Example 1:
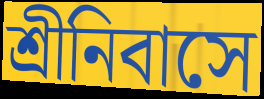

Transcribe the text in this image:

শ্ৰীনিবাসে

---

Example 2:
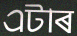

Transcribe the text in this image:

এটাৰ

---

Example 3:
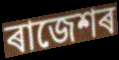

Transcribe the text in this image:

ৰাজেশৰ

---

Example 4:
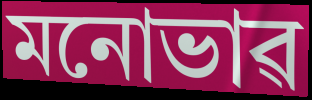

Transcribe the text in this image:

মনোভাৱ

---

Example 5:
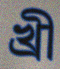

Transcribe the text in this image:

খ্ৰী